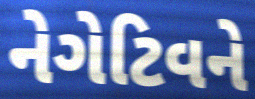
નેગેટિવને